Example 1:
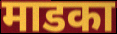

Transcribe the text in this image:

माडका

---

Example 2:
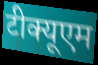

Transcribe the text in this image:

टीक्यूएम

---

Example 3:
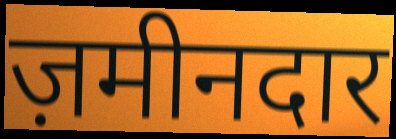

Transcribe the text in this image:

ज़मीनदार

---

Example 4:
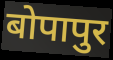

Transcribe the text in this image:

बोपापुर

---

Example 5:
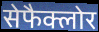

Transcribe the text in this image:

सेफैक्लोर